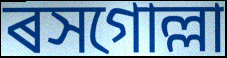
ৰসগোল্লা